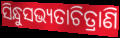
ସିନ୍ଧୁସଭ୍ୟତାଚିତ୍ରାଣି